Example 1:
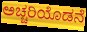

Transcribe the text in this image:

ಅಚ್ಚರಿಯೊಡನೆ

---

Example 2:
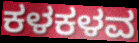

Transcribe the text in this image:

ಕಳಕಳವ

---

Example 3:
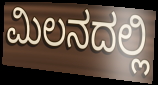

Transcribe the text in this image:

ಮಿಲನದಲ್ಲಿ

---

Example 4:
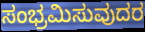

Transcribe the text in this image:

ಸಂಭ್ರಮಿಸುವುದರ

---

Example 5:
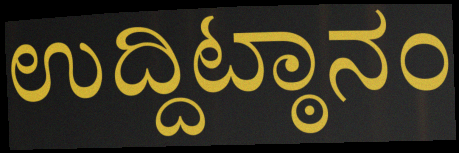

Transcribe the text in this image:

ಉದ್ದಿಟ್ಠಾನಂ